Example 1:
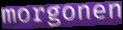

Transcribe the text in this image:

morgonen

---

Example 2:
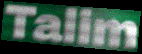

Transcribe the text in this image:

Talim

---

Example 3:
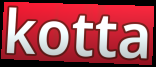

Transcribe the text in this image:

kotta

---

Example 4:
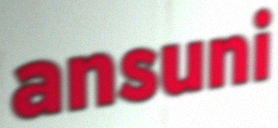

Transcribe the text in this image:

ansuni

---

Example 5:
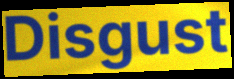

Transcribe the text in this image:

Disgust